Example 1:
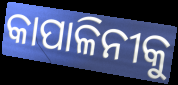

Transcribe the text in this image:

କାପାଳିନୀକୁ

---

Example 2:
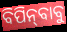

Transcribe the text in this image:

ବିପିନ୍‍ବାବୁ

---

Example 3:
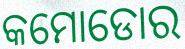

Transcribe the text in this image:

କମୋଡୋର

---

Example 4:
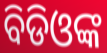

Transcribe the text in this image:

ବିଡିଓଙ୍କ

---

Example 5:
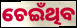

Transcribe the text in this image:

ଚେଇଁଥିବ